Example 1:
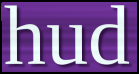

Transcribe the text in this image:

hud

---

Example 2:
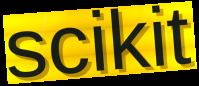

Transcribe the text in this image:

scikit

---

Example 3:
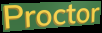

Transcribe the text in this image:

Proctor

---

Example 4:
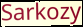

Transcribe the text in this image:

Sarkozy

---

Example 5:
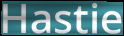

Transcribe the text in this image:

Hastie